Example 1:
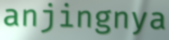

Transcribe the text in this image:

anjingnya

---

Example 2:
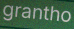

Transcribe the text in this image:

grantho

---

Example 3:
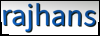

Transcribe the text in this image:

rajhans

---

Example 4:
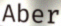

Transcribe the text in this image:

Aber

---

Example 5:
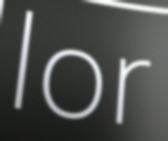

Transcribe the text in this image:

lor